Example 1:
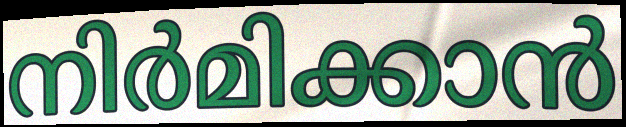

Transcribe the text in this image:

നിർമിക്കാൻ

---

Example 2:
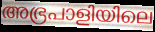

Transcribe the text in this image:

അഭ്രപാളിയിലെ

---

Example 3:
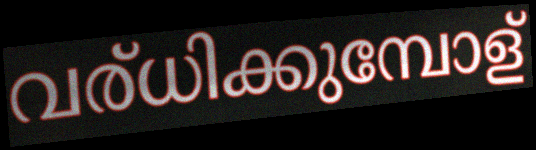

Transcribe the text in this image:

വര്ധിക്കുമ്പോള്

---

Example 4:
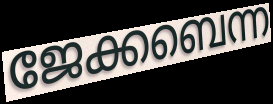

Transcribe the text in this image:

ജേക്കബെന്ന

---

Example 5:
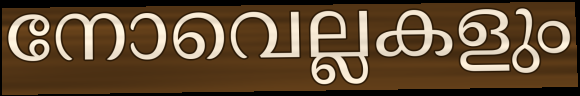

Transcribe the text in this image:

നോവെല്ലകളും